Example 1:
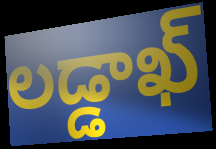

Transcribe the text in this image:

లడ్డాఖ్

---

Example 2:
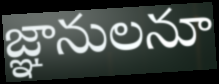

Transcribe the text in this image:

జ్ఞానులనూ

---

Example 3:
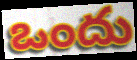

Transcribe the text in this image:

ఒందు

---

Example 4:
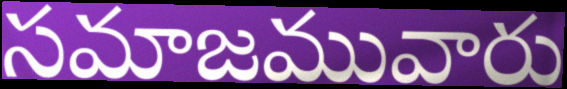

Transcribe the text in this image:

సమాజమువారు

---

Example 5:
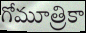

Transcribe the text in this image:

గోమూత్రికా